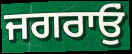
ਜਗਰਾਓੁਂ